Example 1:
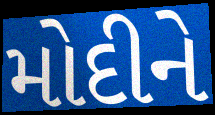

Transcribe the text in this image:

મોદીને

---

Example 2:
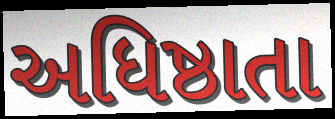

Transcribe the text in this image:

અધિષ્ઠાતા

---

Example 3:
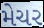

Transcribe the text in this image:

મેચર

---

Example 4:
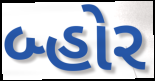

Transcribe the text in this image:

બ્હોર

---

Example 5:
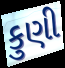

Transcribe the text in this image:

કુણી